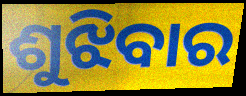
ଶୁଝିବାର